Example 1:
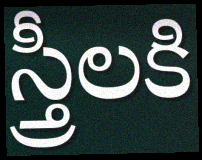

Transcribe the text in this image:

స్త్రీలకి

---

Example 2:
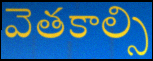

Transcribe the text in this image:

వెతకాల్సి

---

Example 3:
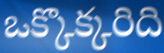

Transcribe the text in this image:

ఒక్కొక్కరిది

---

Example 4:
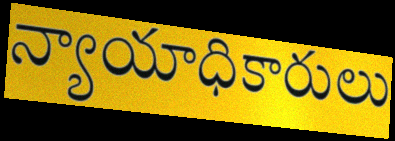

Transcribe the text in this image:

న్యాయాధికారులు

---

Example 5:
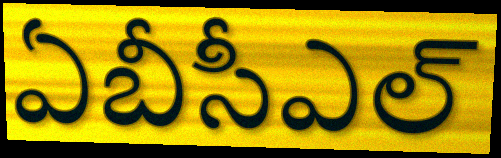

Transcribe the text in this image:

ఏబీసీఎల్